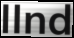
IInd